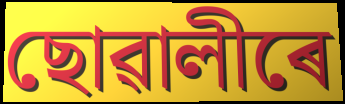
ছোৱালীৰে